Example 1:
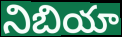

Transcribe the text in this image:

నిబియా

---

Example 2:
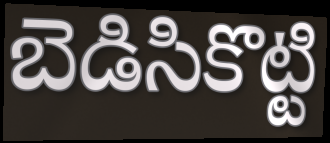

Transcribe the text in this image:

బెడిసికొట్టి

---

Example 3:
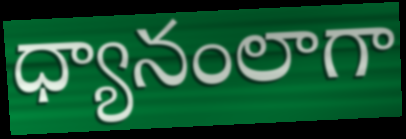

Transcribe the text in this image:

ధ్యానంలాగా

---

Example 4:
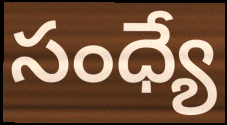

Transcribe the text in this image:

సంధ్యే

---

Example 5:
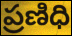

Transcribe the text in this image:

ప్రణిధి